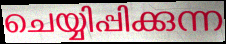
ചെയ്യിപ്പിക്കുന്ന